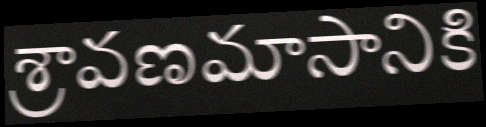
శ్రావణమాసానికి